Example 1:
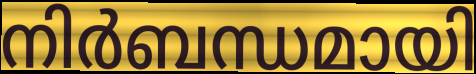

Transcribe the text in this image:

നിർബന്ധമായി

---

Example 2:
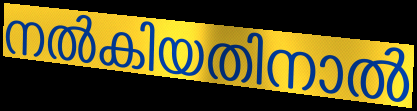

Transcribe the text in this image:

നൽകിയതിനാൽ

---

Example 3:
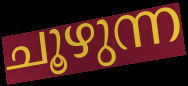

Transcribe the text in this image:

ചൂഴുന്ന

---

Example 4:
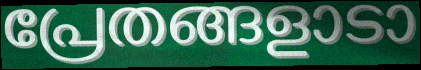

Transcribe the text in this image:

പ്രേതങ്ങളാടാ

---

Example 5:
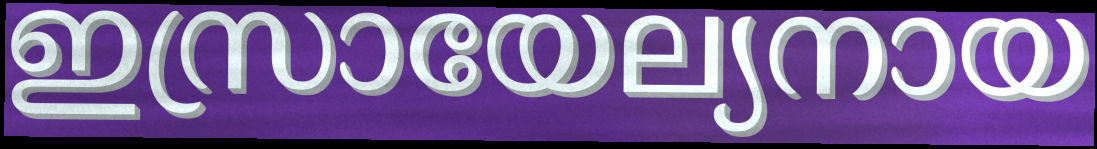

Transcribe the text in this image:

ഇസ്രായേല്യനായ